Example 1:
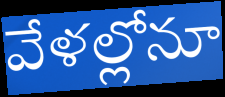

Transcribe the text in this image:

వేళల్లోనూ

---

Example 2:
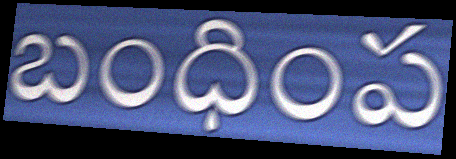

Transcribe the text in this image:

బంధింప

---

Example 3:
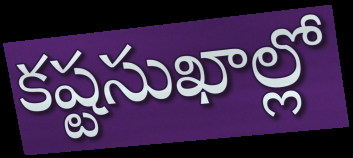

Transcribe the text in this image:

కష్టసుఖాల్లో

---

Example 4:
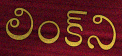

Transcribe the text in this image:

లింక్‌ని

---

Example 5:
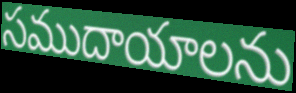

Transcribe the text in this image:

సముదాయాలను